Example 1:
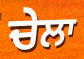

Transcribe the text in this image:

ਚੇਲਾ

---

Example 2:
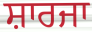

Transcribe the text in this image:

ਸ਼ਾਰਜਾ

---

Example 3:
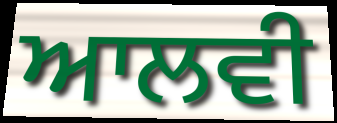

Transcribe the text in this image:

ਆਲਵੀ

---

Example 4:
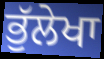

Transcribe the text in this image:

ਭੁੱਲੇਖਾ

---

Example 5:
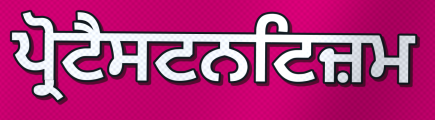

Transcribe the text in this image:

ਪ੍ਰੋਟੈਸਟਨਟਿਜ਼ਮ